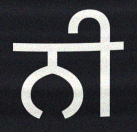
ਨੀ